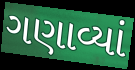
ગણાવ્યાં